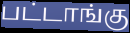
பட்டாங்கு